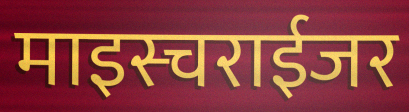
माइस्चराईजर